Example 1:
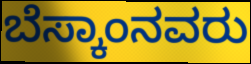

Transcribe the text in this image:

ಬೆಸ್ಕಾಂನವರು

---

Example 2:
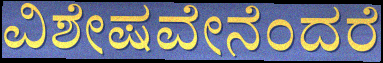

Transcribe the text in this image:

ವಿಶೇಷವೇನೆಂದರೆ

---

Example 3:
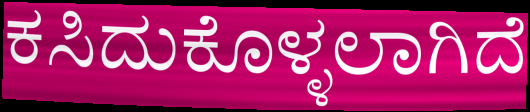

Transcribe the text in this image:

ಕಸಿದುಕೊಳ್ಳಲಾಗಿದೆ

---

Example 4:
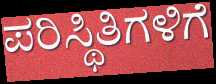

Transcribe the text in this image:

ಪರಿಸ್ಥಿತಿಗಳಿಗೆ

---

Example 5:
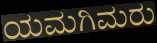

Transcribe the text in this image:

ಯಮಗಿಮರು